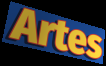
Artes